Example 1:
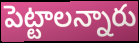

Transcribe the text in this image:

పెట్టాలన్నారు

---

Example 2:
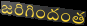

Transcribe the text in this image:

జరిగిందంత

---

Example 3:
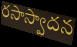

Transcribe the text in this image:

రసాస్వాదన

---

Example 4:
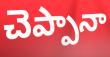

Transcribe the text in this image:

చెప్పానా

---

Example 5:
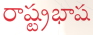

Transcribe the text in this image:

రాష్ట్రభాష